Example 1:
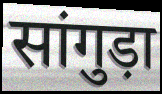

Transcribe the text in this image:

सांगुड़ा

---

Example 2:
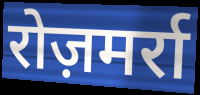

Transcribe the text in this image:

रोज़मर्रा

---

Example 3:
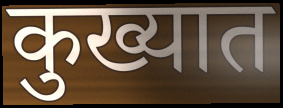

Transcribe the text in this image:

कुख्यात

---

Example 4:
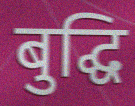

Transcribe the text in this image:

बुद्घि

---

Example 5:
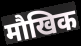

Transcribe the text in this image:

मौखिक